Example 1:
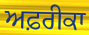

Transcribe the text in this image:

ਅਫ਼ਰੀਕਾ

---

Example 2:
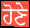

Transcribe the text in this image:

ਹੋਣੇ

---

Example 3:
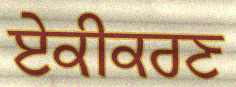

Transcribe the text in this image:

ਏਕੀਕਰਣ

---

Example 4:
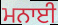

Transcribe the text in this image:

ਮਨਾਈ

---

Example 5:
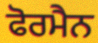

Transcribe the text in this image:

ਫੋਰਮੈਨ